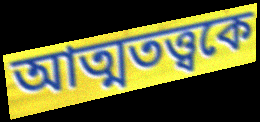
আত্মতত্ত্বকে